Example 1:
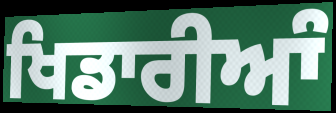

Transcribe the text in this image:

ਖਿਡਾਰੀਆੰ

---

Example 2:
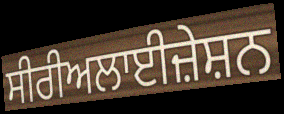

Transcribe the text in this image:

ਸੀਰੀਅਲਾਈਜ਼ੇਸ਼ਨ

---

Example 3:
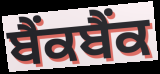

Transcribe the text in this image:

ਬੈਂਕਬੈਂਕ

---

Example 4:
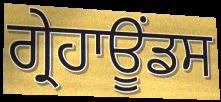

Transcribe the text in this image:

ਗ੍ਰੇਹਾਊਂਡਸ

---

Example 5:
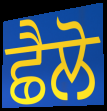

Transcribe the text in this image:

ਛੈਲੋ